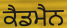
ਕੈਡਮੈਨ